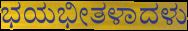
ಭಯಭೀತಳಾದಳು